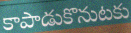
కాపాడుకొనుటకు